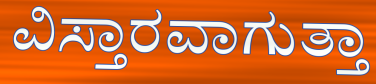
ವಿಸ್ತಾರವಾಗುತ್ತಾ